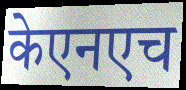
केएनएच